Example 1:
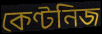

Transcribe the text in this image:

কেণ্টনিজ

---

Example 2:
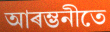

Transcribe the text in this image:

আৰম্ভনীতে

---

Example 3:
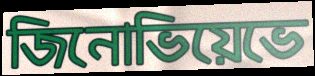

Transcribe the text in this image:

জিনোভিয়েভে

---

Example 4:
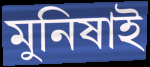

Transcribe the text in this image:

মুনিষাই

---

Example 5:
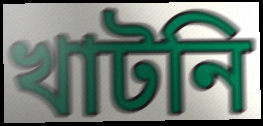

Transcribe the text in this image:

খাটনি